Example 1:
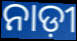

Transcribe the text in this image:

ନାଡ଼ୀ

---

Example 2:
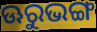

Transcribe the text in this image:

ଊରୁଭଙ୍ଗ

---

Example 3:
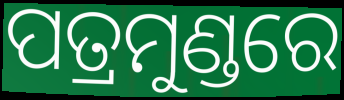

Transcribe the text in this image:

ପତ୍ରମୁଣ୍ଡରେ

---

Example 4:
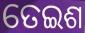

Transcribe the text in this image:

ତେଇଶ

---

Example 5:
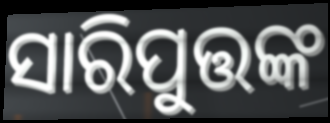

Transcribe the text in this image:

ସାରିପୁତ୍ତଙ୍କ